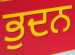
ਭੁਦਨ